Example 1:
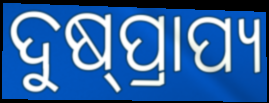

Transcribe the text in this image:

ଦୁଷ୍‌ପ୍ରାପ୍ୟ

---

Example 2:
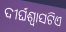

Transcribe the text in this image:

ଦୀର୍ଘଶ୍ୱାସଟିଏ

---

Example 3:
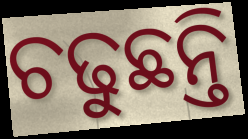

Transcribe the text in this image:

ଚଢୁଛନ୍ତି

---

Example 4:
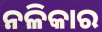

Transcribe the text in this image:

ନଳିକାର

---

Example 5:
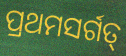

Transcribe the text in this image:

ପ୍ରଥମସର୍ଗତ୍